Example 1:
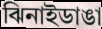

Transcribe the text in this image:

ঝিনাইডাঙা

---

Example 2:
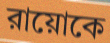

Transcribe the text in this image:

রায়োকে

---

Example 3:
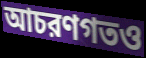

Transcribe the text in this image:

আচরণগতও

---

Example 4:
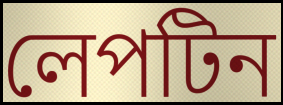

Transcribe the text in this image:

লেপটিন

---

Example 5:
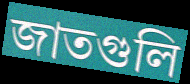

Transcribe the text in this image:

জাতগুলি